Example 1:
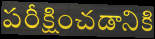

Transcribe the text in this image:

పరీక్షించడానికి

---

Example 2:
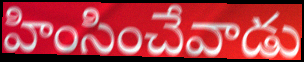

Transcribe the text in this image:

హింసించేవాడు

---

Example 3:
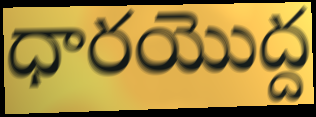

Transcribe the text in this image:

ధారయొద్ద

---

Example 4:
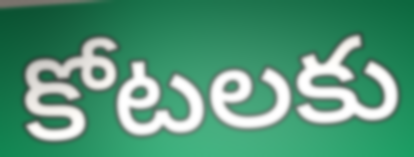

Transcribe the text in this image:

కోటలకు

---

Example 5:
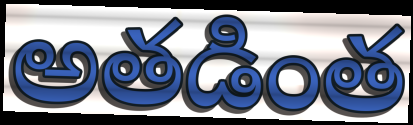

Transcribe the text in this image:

అతడింత